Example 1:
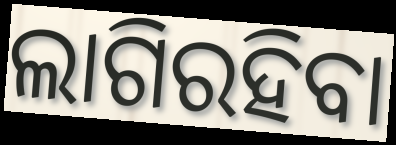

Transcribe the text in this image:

ଲାଗିରହିବା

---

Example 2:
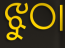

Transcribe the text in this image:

ଝୁଠା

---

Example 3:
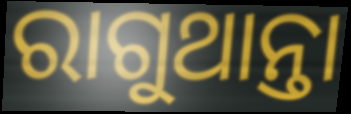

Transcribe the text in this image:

ରାଗୁଥାନ୍ତା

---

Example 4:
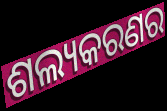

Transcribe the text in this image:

ଶଲ୍ୟକରଣର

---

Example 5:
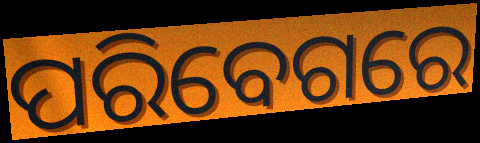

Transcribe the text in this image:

ପରିବେଗରେ